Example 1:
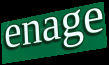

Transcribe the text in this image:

enage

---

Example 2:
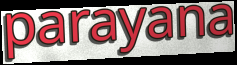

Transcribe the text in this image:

parayana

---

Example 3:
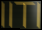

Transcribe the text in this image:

IITI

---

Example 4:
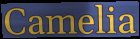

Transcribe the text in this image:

Camelia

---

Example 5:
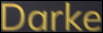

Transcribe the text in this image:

Darke